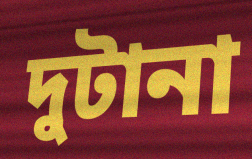
দুটানা